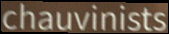
chauvinists